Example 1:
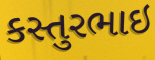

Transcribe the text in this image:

કસ્તુરભાઇ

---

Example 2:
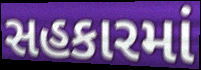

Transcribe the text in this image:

સહકારમાં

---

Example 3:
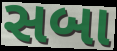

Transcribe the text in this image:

સબા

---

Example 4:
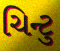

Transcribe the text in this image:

ચિન્ટુ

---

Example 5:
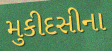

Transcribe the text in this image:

મુકીદસીના